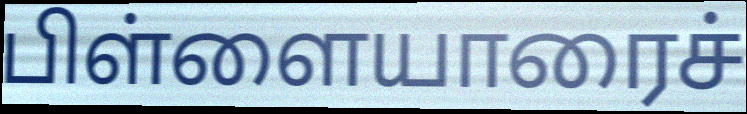
பிள்ளையாரைச்